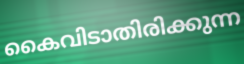
കൈവിടാതിരിക്കുന്ന